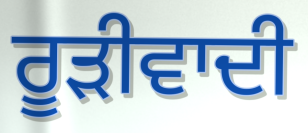
ਰੂੜੀਵਾਦੀ